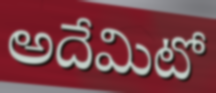
అదేమిటో